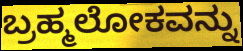
ಬ್ರಹ್ಮಲೋಕವನ್ನು